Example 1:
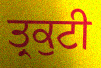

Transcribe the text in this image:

ਤ੍ਰਕੁਟੀ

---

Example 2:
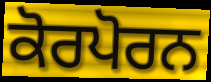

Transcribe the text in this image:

ਕੋਰਪੋਰਨ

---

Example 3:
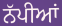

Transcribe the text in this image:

ਨੱਪੀਆਂ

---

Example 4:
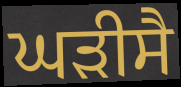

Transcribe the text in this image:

ਘੜੀਸੈ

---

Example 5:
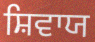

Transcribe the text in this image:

ਸ਼ਿਵਾਯ